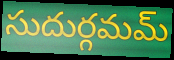
సుదుర్గమమ్